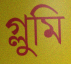
গ্লুমি